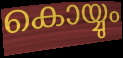
കൊയ്യും